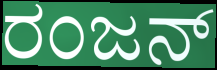
ರಂಜನ್